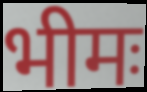
भीमः